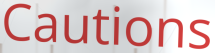
Cautions